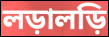
লড়ালড়ি